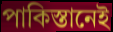
পাকিস্তানেই